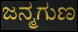
ಜನ್ಮಗುಣ